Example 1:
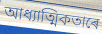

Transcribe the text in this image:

আধ্যাত্মিকতাৰে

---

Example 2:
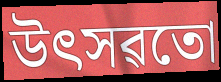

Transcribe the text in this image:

উৎসৱতো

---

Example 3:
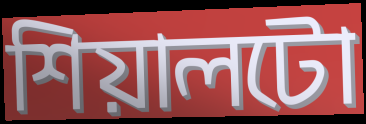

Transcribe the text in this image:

শিয়ালটো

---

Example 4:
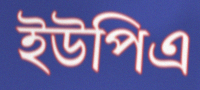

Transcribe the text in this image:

ইউপিএ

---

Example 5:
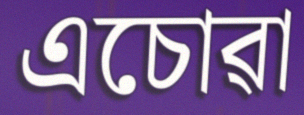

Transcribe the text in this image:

এচোৱা